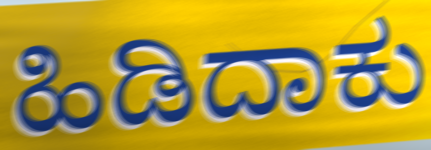
ಹಿಡಿದಾಕು